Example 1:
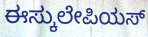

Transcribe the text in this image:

ಈಸ್ಕುಲೇಪಿಯಸ್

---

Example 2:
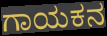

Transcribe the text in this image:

ಗಾಯಕನ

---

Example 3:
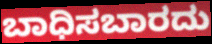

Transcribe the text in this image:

ಬಾಧಿಸಬಾರದು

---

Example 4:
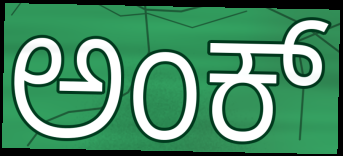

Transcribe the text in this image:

ಅಂಕ್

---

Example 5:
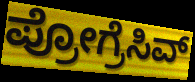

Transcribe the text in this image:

ಪ್ರೋಗ್ರೆಸಿವ್